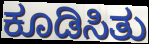
ಕೂಡಿಸಿತು